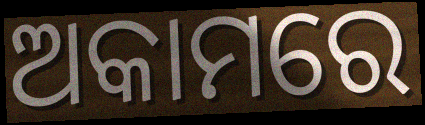
ଅକାମରେ